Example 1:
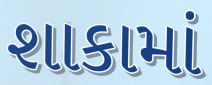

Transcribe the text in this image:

શાકામાં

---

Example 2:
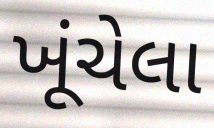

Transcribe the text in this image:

ખૂંચેલા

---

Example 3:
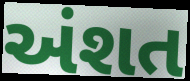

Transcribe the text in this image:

અંશત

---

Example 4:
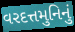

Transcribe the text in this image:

વરદત્તમુનિનું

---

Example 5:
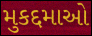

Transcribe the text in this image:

મુકદ્દમાઓ